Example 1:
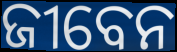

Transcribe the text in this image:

ଜୀବେନ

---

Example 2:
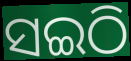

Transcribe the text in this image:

ସଇଠି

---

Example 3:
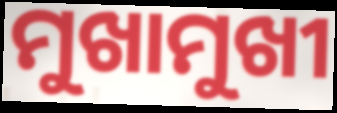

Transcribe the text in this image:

ମୁଖାମୁଖୀ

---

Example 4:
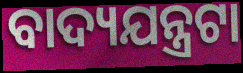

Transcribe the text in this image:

ବାଦ୍ୟଯନ୍ତ୍ରଟା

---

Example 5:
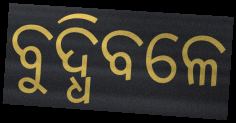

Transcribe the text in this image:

ବୁଦ୍ଧିବଳେ